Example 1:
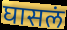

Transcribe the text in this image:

घासलं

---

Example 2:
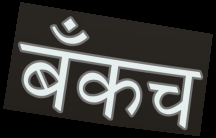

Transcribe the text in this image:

बँकच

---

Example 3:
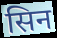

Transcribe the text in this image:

सिन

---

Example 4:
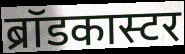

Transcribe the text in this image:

ब्रॉडकास्टर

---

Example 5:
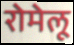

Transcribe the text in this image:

रोमेलू